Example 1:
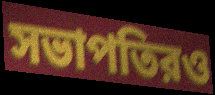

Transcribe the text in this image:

সভাপতিরও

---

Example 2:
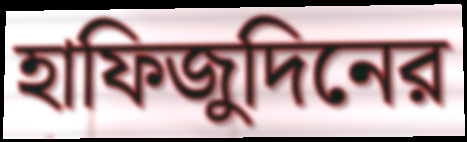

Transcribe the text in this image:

হাফিজুদিনের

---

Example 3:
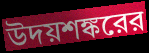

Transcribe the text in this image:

উদয়শঙ্করের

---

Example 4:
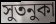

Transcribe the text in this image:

সুতনুকা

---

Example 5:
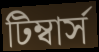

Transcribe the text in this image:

টিম্বার্স